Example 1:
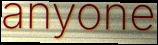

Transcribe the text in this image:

anyone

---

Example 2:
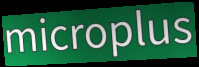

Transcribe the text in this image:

microplus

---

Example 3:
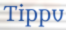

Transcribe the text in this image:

Tippu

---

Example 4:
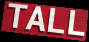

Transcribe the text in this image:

TALL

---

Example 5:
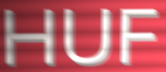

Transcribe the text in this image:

HUF